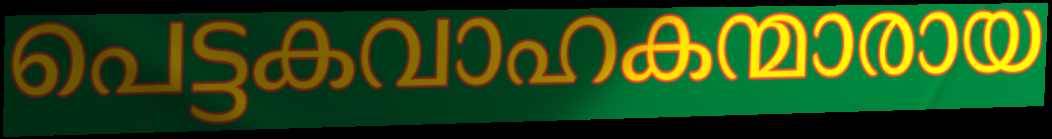
പെട്ടകവാഹകന്മാരായ